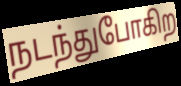
நடந்துபோகிற